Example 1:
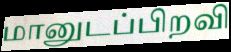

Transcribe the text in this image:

மானுடப்பிறவி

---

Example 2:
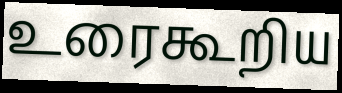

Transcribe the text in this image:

உரைகூறிய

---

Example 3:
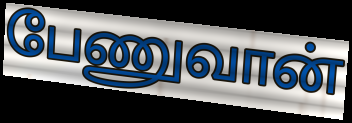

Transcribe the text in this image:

பேணுவான்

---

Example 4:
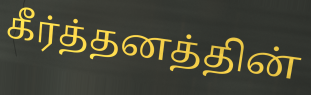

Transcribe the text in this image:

கீர்த்தனத்தின்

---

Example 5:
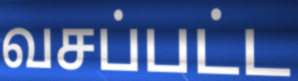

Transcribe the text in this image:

வசப்பட்ட